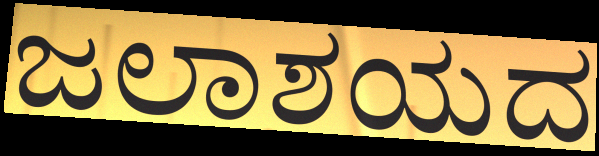
ಜಲಾಶಯದ